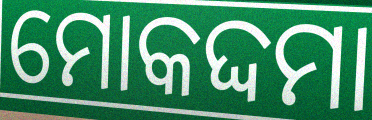
ମୋକଦ୍ଦମା